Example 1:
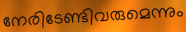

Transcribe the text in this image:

നേരിടേണ്ടിവരുമെന്നും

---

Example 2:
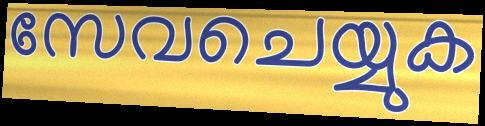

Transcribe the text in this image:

സേവചെയ്യുക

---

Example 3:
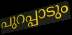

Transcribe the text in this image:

പുറപ്പാടും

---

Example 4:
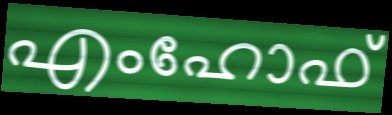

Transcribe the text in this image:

എംഹോഫ്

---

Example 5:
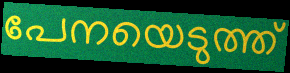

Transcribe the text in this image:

പേനയെടുത്ത്